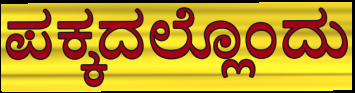
ಪಕ್ಕದಲ್ಲೊಂದು